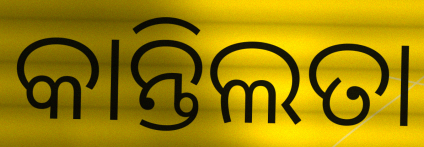
କାନ୍ତିଲତା